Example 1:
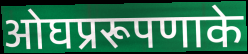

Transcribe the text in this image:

ओघप्ररूपणाके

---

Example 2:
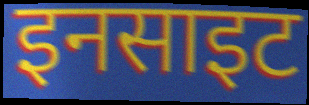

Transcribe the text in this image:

इनसाइट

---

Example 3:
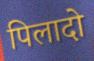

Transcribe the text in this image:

पिलादो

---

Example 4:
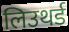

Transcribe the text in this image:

लिउथर्ड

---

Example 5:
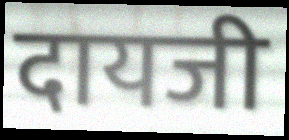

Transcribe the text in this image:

दायजी